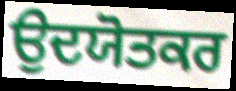
ਉਦਯੋਤਕਰ